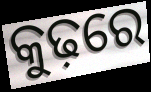
କୁଢ଼ରେ